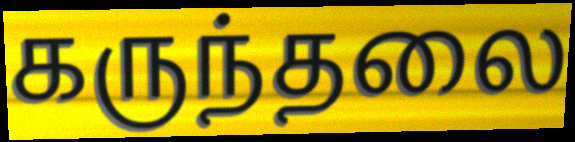
கருந்தலை